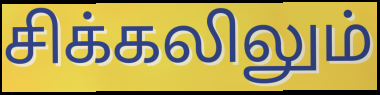
சிக்கலிலும்